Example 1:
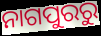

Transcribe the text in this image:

ନାଗପୁରରୁ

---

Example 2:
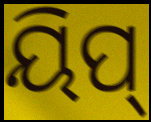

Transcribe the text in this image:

ୟିପ୍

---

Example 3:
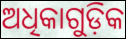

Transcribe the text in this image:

ଅଧିକାଗୁଡ଼ିକ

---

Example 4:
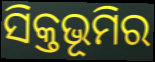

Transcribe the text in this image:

ସିକ୍ତଭୂମିର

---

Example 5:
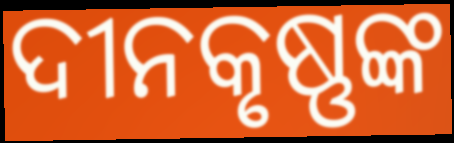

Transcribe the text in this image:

ଦୀନକୃଷ୍ଣଙ୍କ